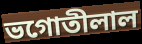
ভগোতীলাল